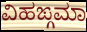
ವಿಹಙ್ಗಮಾ